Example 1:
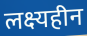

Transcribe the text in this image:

लक्ष्यहीन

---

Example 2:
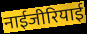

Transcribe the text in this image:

नाईजीरियाई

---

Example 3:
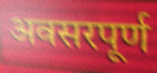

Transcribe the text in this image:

अवसरपूर्ण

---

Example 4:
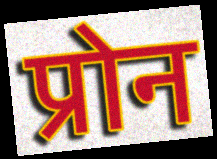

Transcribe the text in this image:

प्रोन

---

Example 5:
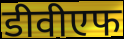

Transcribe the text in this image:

डीवीएफ